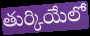
తుర్కియేలో